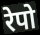
रेपो